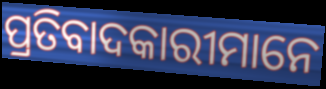
ପ୍ରତିବାଦକାରୀମାନେ